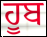
ਹੂਬ